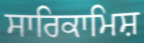
ਸਾਰਿਕਾਮਿਸ਼